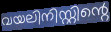
വയലിനിസ്റ്റിന്റെ